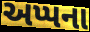
અપ્પના